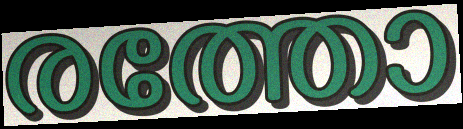
രത്തോ